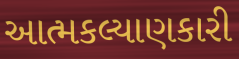
આત્મકલ્યાણકારી